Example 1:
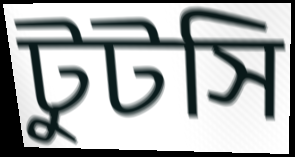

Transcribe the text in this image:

টুটসি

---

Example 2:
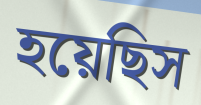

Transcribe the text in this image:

হয়েছিস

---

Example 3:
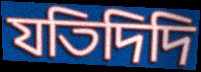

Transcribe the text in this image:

যতিদিদি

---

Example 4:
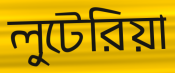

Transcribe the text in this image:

লুটেরিয়া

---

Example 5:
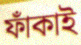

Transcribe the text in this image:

ফাঁকাই